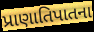
પ્રાણાતિપાતના